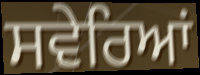
ਸਵੇਰਿਆਂ